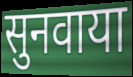
सुनवाया